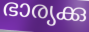
ഭാര്യക്കു